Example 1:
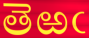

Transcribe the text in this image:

తెఱఁ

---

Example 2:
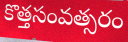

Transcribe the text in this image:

కొత్తసంవత్సరం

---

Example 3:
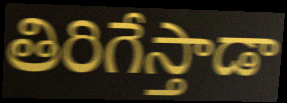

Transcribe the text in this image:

తిరిగేస్తాడా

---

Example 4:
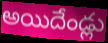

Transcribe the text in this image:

అయిదేండ్లు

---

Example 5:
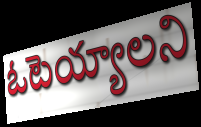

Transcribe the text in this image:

ఓటెయ్యాలని